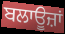
ਬਲਾਊਜ਼ਾਂ